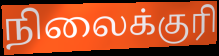
நிலைக்குரி